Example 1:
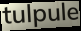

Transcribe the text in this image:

tulpule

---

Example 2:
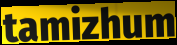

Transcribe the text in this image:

tamizhum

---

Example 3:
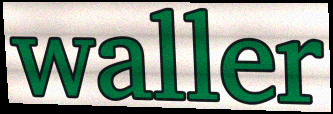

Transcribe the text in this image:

waller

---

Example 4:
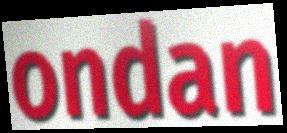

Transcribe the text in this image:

ondan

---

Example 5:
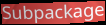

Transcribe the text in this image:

Subpackage